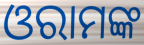
ଓରାମଙ୍କ